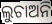
ଲୁଚାଅନି